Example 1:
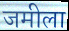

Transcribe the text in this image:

जमीला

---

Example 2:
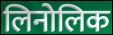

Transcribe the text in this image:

लिनोलिक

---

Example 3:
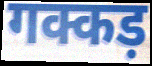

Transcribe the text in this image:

गक्कड़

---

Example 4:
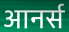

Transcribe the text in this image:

आनर्स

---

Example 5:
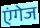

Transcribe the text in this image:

एंगेज